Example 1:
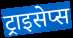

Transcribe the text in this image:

ट्राइसेप्स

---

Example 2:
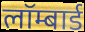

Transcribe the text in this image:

लॉम्बार्ड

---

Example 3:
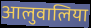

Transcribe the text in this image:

आलुवालिया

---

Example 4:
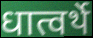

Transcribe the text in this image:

धात्वर्थे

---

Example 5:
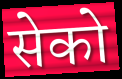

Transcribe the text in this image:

सेको